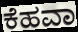
ಕೆಹವಾ